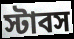
স্টাবস